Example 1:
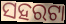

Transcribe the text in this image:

ସହରଟା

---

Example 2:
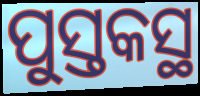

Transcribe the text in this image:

ପୁସ୍ତକସ୍ଥ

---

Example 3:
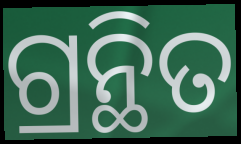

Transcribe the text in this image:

ଗ୍ରନ୍ଥିତ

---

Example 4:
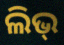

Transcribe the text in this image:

ଲିଭ୍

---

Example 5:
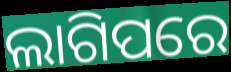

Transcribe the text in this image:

ଲାଗିପରେ